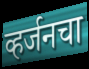
व्हर्जनचा